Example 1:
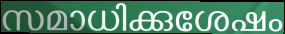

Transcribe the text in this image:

സമാധിക്കുശേഷം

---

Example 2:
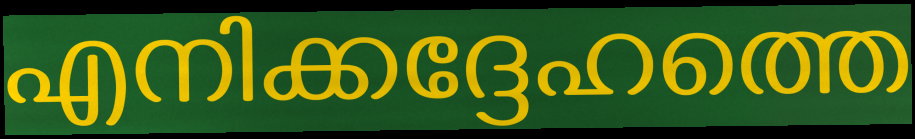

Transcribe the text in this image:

എനിക്കദ്ദേഹത്തെ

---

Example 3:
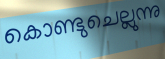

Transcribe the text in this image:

കൊണ്ടുചെല്ലുന്നു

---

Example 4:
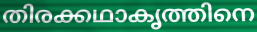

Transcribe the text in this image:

തിരക്കഥാകൃത്തിനെ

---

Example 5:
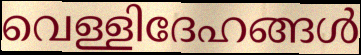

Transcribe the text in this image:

വെള്ളിദേഹങ്ങൾ